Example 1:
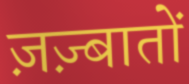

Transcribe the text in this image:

ज़ज़्बातों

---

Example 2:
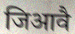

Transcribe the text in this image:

जिआवै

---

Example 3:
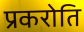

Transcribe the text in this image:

प्रकरोति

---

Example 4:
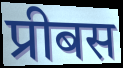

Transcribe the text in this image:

प्रीबस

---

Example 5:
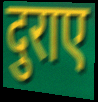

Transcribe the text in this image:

दुराए